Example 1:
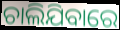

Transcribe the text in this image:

ଚାଲିଯିବାରେ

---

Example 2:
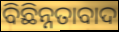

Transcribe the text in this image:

ବିଛିନ୍ନତାବାଦ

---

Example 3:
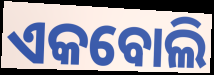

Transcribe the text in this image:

ଏକବୋଲି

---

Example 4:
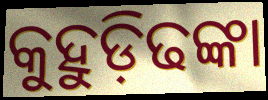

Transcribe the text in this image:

କୁହୁଡ଼ିଢଙ୍କା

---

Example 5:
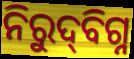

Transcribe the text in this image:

ନିରୁଦ୍‌ବିଗ୍ନ